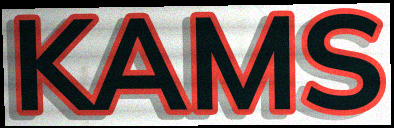
KAMS